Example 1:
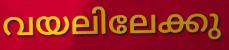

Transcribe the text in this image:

വയലിലേക്കു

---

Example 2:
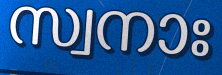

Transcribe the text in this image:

സ്വനാഃ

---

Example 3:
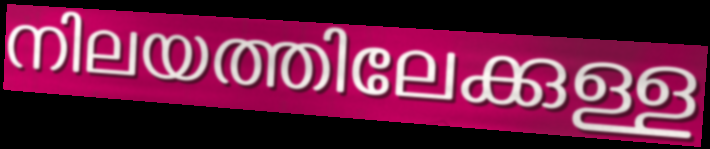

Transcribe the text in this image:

നിലയത്തിലേക്കുള്ള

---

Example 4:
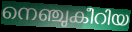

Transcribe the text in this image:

നെഞ്ചുകീറിയ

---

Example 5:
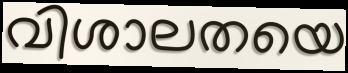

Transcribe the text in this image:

വിശാലതയെ